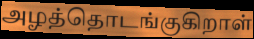
அழத்தொடங்குகிறாள்